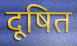
दूषित